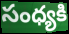
సంధ్యకి